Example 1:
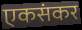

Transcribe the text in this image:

एकसंकर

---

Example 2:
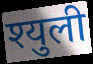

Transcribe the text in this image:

श्युली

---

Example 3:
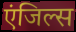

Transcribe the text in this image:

एंजिल्स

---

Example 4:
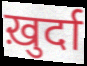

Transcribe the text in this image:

ख़ुर्दा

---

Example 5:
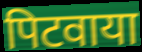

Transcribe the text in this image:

पिटवाया